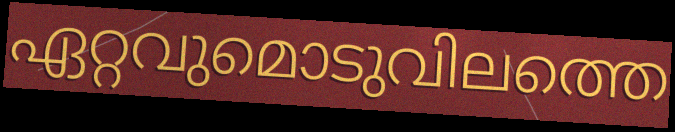
ഏറ്റവുമൊടുവിലത്തെ